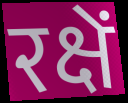
रक्षें